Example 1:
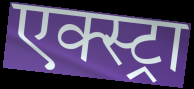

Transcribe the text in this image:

एक्स्ट्रा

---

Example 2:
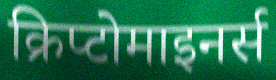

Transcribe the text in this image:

क्रिप्टोमाइनर्स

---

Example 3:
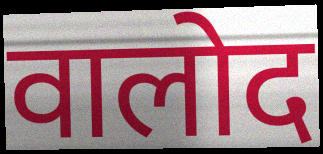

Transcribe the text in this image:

वालोद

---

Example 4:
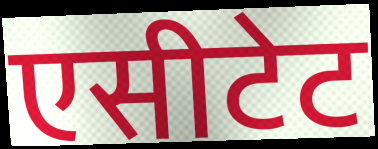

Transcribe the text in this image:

एसीटेट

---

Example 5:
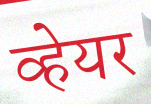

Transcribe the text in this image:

व्हेयर